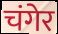
चंगेर